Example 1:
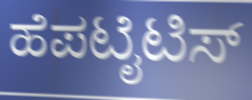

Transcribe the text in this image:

ಹೆಪಟೈಟಿಸ್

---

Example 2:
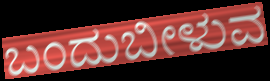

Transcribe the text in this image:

ಬಂದುಬೀಳುವ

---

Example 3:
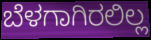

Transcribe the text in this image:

ಬೆಳಗಾಗಿರಲಿಲ್ಲ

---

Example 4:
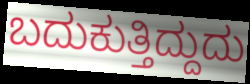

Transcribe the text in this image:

ಬದುಕುತ್ತಿದ್ದುದು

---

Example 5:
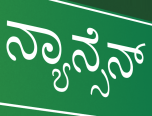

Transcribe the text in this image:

ನ್ಯಾನ್ಸೆನ್